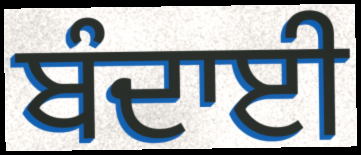
ਬੰਦਾਈ